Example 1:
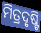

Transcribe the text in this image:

ମିତ୍ରଦୃଷ୍ଟି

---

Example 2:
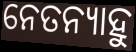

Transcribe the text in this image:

ନେତନ୍ୟାହୁ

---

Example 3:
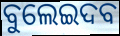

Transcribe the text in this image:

ବୁଲେଇଦବ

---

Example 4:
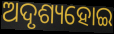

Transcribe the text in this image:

ଅଦୃଶ୍ୟହୋଇ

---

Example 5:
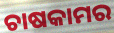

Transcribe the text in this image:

ଚାଷକାମର